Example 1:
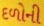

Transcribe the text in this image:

દળોની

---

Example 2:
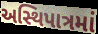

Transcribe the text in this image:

અસ્થિપાત્રમાં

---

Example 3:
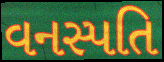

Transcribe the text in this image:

વનસ્પતિ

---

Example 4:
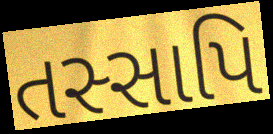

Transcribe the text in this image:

તસ્સાપિ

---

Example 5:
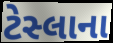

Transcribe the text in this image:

ટેસ્લાના